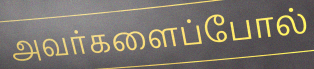
அவர்களைப்போல்